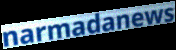
narmadanews